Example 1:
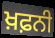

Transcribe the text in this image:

ਖ਼ਫ਼ਨੀ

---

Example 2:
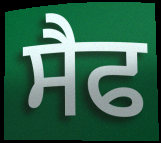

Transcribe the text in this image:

ਸੈਫ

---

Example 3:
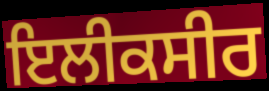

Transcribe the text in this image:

ਇਲੀਕਸੀਰ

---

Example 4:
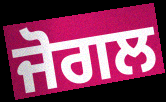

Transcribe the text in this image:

ਜੋਗਲ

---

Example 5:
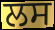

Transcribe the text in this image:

ਲਸ